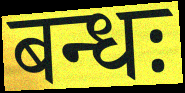
बन्धः